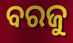
ବରଜୁ